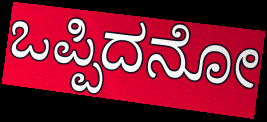
ಒಪ್ಪಿದನೋ